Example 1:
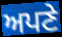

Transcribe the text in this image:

ਅਪਣੇ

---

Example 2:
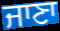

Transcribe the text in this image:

ਜਾਣਾ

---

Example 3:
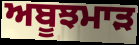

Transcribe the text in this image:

ਅਬੂਝਮਾੜ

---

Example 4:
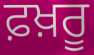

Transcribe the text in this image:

ਫ਼ਖ਼ਰੂ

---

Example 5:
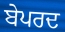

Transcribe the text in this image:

ਬੇਪਰਦ